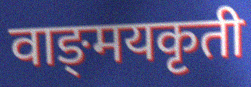
वाङ्‌मयकृती